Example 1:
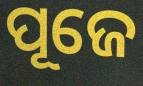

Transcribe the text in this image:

ପୂଜେ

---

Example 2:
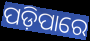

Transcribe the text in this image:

ପଡ଼ିପାରେ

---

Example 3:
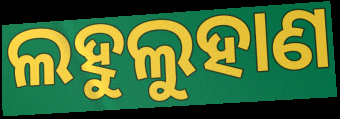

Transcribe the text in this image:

ଲହୁଲୁହାଣ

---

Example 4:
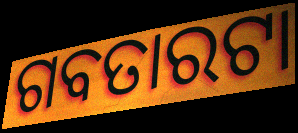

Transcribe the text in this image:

ଗବତାରଟା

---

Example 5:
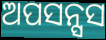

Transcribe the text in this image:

ଅପସନ୍ସସ